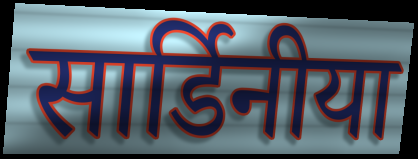
सार्डिनीया